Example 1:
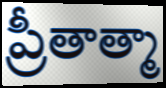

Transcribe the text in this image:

ప్రీతాత్మా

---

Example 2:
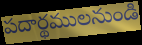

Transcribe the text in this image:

పదార్థములనుండి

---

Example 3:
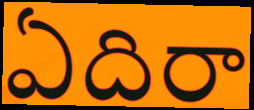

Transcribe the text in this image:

ఏదిరా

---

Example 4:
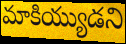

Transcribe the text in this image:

మాకియ్యుడని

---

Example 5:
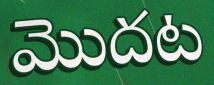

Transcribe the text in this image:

మొదట